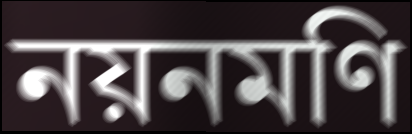
নয়নমণি